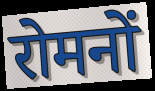
रोमनों